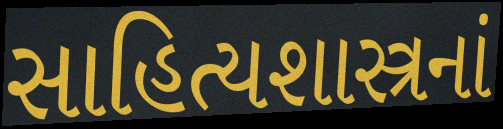
સાહિત્યશાસ્ત્રનાં